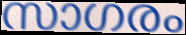
സാഗരം